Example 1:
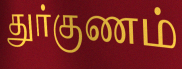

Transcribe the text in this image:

துர்குணம்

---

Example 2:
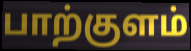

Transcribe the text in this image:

பாற்குளம்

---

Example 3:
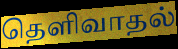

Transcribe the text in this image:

தெளிவாதல்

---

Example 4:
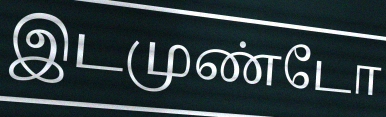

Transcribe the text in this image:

இடமுண்டோ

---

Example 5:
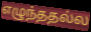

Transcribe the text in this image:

எழுந்ததல்ல